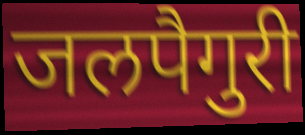
जलपैगुरी